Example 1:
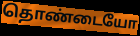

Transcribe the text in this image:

தொண்டையோ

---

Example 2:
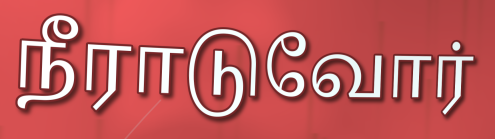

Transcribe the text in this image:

நீராடுவோர்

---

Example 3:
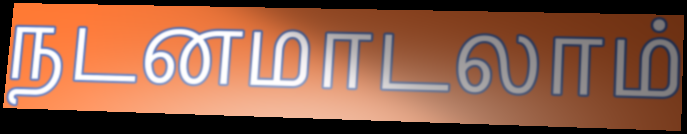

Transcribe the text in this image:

நடனமாடலாம்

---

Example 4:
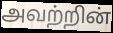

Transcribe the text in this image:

அவற்றின்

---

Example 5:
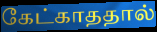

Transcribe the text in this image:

கேட்காததால்